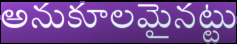
అనుకూలమైనట్టు